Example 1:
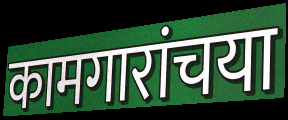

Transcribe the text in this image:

कामगारांचया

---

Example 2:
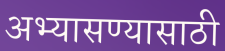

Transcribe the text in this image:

अभ्यासण्यासाठी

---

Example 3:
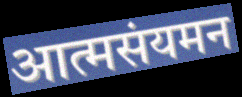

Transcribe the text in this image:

आत्मसंयमन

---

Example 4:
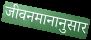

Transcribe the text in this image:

जीवनमानानुसार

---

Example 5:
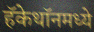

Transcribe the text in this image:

हॅकेथॉनमध्ये